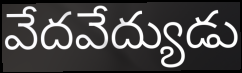
వేదవేద్యుడు